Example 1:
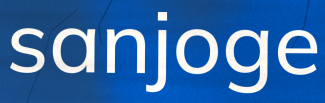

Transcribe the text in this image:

sanjoge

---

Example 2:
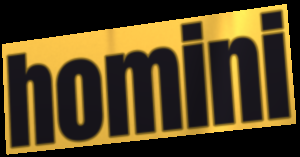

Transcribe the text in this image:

homini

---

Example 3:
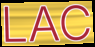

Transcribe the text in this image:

LAC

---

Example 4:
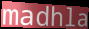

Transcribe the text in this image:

madhla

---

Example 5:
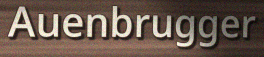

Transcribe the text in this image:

Auenbrugger